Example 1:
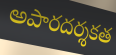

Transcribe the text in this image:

అపారదర్శకత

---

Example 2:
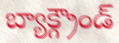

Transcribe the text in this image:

బ్యాక్గ్రౌండ్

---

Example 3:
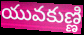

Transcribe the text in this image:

యువకుణ్ణి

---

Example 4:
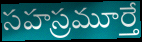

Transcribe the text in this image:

సహస్రమూర్తే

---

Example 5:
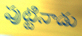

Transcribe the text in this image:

పుట్టినాడు